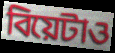
বিয়েটাও